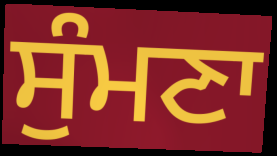
ਸੁੰਮਣਾ